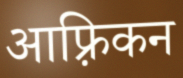
आफ़्रिकन